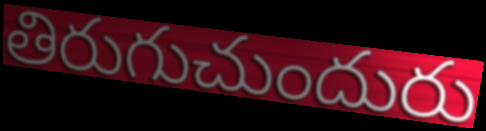
తిరుగుచుందురు